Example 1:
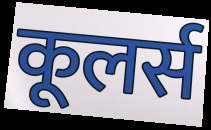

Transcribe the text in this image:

कूलर्स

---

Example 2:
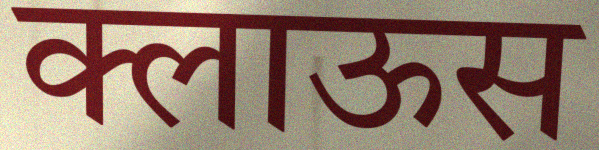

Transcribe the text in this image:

क्लाऊस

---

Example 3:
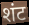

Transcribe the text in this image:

शंट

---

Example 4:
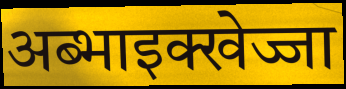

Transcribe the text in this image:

अब्भाइक्खेज्जा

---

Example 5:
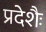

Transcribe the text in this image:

प्रदेशैः